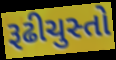
રૂઢીચુસ્તો